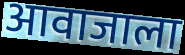
आवाजाला